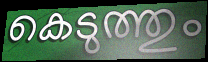
കെടുത്തും